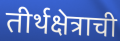
तीर्थक्षेत्राची